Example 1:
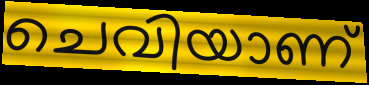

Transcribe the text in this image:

ചെവിയാണ്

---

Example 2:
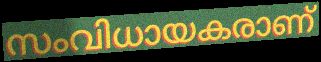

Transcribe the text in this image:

സംവിധായകരാണ്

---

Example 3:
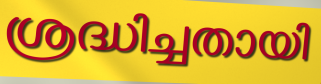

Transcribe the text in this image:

ശ്രദ്ധിച്ചതായി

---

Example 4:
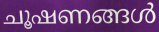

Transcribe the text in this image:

ചൂഷണങ്ങൾ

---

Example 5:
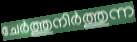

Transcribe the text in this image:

ചേർത്തുനിർത്തുന്ന